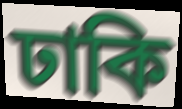
ঢাকি